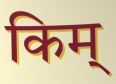
किम्